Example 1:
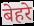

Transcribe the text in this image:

बेहरे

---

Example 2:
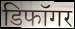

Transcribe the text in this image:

डिफॉगर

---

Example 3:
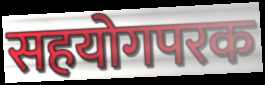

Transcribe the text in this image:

सहयोगपरक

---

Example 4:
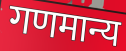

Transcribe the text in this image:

गणमान्‍य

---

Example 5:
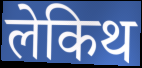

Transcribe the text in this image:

लेकिथ